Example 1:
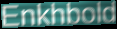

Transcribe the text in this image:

Enkhbold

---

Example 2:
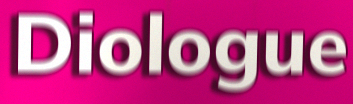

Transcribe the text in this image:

Diologue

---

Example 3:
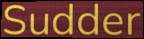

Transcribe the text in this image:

Sudder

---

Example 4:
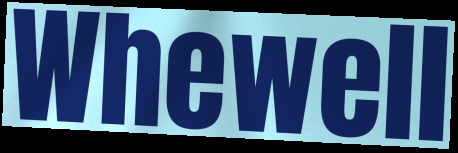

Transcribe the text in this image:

Whewell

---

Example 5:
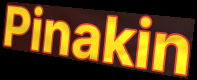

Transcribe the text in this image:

Pinakin